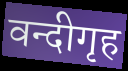
वन्दीगृह